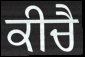
ਕੀਚੈ